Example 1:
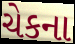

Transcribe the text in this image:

ચેકના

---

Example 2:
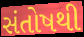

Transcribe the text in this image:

સંતોષથી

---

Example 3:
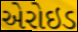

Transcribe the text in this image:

એરોઇડ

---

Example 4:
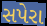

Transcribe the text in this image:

સપેરા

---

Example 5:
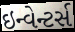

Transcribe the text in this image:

ઇન્વેન્ટર્સ